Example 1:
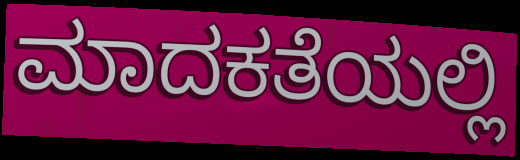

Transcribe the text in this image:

ಮಾದಕತೆಯಲ್ಲಿ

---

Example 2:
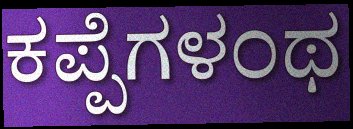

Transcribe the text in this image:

ಕಪ್ಪೆಗಳಂಥ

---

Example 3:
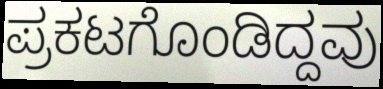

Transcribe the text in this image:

ಪ್ರಕಟಗೊಂಡಿದ್ದವು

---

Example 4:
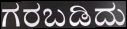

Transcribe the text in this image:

ಗರಬಡಿದು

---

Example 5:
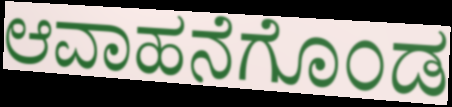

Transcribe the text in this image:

ಆವಾಹನೆಗೊಂಡ